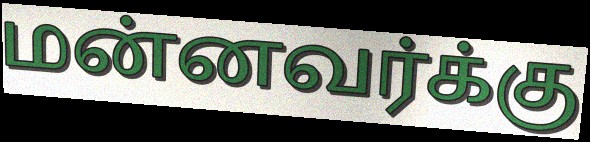
மன்னவர்க்கு